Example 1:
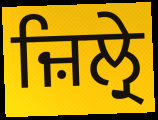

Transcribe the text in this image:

ਜ਼ਿਲ੍ਰੇ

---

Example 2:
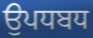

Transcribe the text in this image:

ਉਪਧਬਧ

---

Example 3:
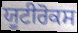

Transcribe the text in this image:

ਯੂਟੀਰੋਕਸ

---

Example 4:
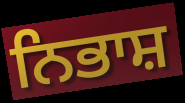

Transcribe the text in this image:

ਨਿਭਾਸ਼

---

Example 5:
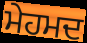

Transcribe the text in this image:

ਮੇਹਮਦ